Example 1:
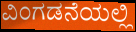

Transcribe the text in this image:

ವಿಂಗಡನೆಯಲ್ಲಿ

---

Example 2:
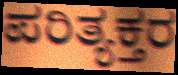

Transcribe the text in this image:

ಪರಿತ್ಯಕ್ತರ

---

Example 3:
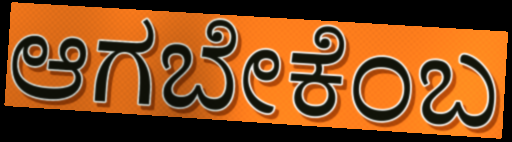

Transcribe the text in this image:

ಆಗಬೇಕೆಂಬ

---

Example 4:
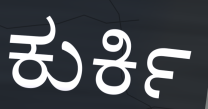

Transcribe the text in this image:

ಕುರ್ಕಿ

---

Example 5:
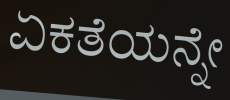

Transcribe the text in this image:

ಏಕತೆಯನ್ನೇ